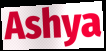
Ashya